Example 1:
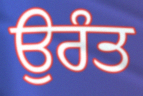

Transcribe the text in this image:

ਉਰੰਤ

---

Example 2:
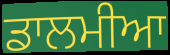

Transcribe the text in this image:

ਡਾਲਮੀਆ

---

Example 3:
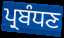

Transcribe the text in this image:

ਪ੍ਰਬੰਧਣ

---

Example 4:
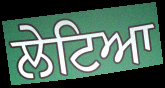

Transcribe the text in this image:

ਲੇਟਿਆ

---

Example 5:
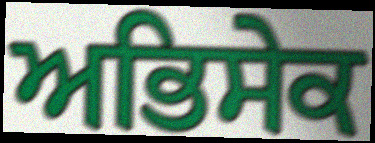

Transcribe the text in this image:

ਅਭਿਸੇਕ